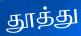
தூத்து